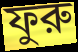
ফুরু